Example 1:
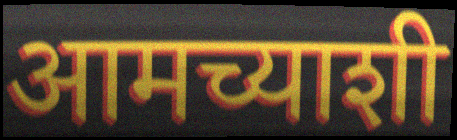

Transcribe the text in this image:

आमच्याशी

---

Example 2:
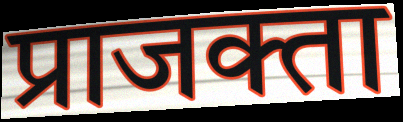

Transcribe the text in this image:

प्राजक्ता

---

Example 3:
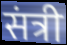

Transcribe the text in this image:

संत्री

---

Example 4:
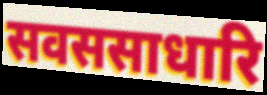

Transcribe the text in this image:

सवससाधारि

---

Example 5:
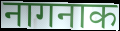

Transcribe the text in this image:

नागनाक